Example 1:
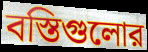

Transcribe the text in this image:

বস্তিগুলোর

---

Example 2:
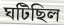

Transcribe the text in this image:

ঘটিছিল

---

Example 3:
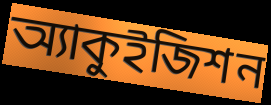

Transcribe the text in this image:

অ্যাকুইজিশন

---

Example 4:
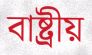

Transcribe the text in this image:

বাষ্ট্রীয়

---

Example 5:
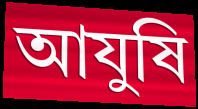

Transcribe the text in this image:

আযুষি